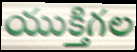
యుక్తిగల